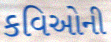
કવિઓની